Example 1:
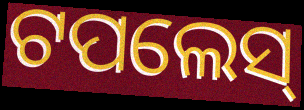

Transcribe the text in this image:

ଟପଲେସ୍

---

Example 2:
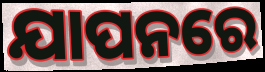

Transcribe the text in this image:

ଯାପନରେ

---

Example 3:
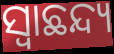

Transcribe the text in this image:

ସ୍ୱାଛନ୍ଦ୍ୟ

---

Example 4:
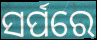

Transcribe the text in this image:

ସର୍ପରେ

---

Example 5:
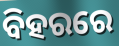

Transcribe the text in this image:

ବିହରରେ